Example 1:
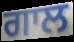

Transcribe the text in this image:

ਗਾਲ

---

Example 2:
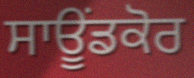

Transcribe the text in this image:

ਸਾਊਂਡਕੋਰ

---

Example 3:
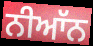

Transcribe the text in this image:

ਨੀਆੱਨ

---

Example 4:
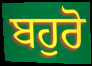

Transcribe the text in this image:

ਬਹੁਰੋ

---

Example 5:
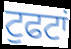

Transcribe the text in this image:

ਟੁਫਟਾਂ